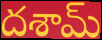
దశామ్